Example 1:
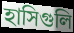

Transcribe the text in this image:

হাসিগুলি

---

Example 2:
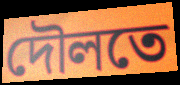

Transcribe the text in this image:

দৌলতে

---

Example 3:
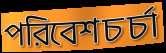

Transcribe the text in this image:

পরিবেশচর্চা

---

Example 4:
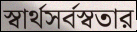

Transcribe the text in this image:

স্বার্থসর্বস্বতার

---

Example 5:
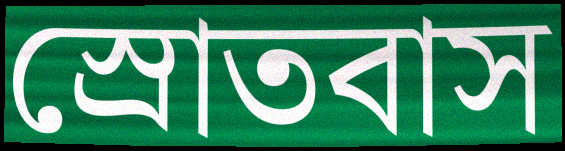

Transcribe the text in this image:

স্রোতবাস